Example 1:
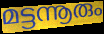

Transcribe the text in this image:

മട്ടന്നൂരും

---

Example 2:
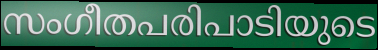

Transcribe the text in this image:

സംഗീതപരിപാടിയുടെ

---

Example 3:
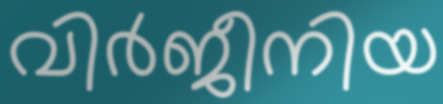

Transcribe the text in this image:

വിർജീനിയ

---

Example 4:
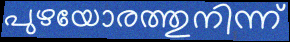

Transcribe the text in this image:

പുഴയോരത്തുനിന്ന്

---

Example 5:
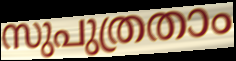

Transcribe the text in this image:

സുപുത്രതാം